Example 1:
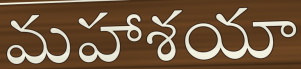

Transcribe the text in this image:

మహాశయా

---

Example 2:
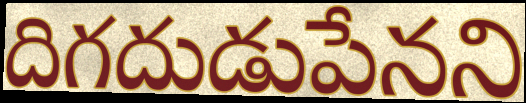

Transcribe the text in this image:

దిగదుడుపేనని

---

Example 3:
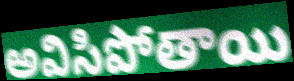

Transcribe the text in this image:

అవిసిపోతాయి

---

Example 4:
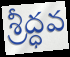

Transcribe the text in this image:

శ్రీద్ధవ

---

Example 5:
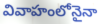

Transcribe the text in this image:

వివాహంలోనైనా